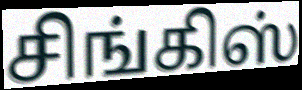
சிங்கிஸ்